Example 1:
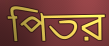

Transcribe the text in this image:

পিতর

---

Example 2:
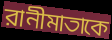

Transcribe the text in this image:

রানীমাতাকে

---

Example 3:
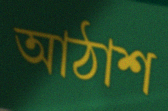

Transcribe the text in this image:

আঠাশ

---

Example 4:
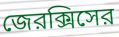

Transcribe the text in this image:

জেরক্সিসের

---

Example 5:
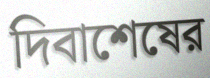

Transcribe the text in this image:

দিবাশেষের